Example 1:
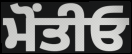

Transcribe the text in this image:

ਮੋਂਤੀਓ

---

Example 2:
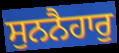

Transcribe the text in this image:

ਸੁਨਨੈਹਾਰੁ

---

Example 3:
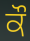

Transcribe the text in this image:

ਕੌ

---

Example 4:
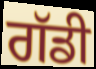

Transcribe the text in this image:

ਗੱਡੀ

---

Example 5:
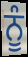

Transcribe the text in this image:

ਨੂੰ